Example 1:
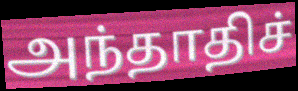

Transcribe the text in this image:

அந்தாதிச்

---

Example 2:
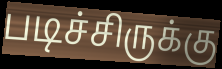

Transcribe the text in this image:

படிச்சிருக்கு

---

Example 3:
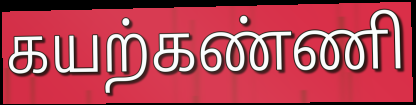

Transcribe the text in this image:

கயற்கண்ணி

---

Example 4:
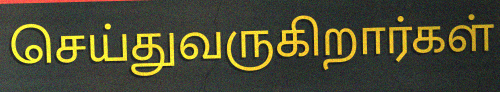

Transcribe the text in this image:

செய்துவருகிறார்கள்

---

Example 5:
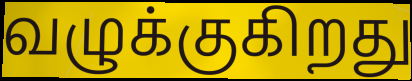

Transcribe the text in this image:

வழுக்குகிறது